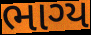
ભાગ્ય